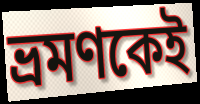
ভ্রমণকেই